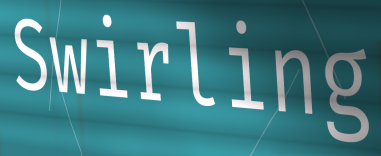
Swirling